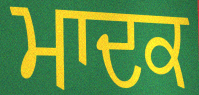
ਮਾਦਕ